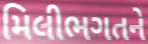
મિલીભગતને